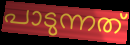
പാടുന്നത്